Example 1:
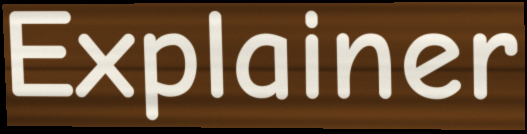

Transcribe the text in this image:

Explainer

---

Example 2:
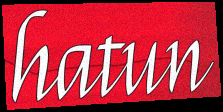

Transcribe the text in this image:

hatun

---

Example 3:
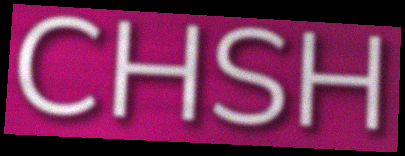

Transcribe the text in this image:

CHSH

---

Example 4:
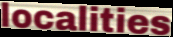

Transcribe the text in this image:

localities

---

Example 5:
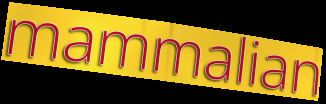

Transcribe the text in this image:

mammalian